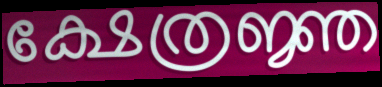
ക്ഷേത്രജ്ഞ